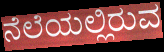
ನೆಲೆಯಲ್ಲಿರುವ